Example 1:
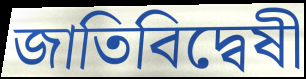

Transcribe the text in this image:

জাতিবিদ্বেষী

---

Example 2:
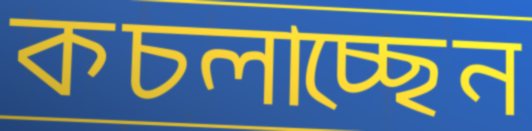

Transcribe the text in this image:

কচলাচ্ছেন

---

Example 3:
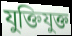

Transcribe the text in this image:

যুক্তিযুক্ত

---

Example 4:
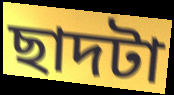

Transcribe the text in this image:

ছাদটা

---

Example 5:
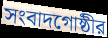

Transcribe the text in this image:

সংবাদগোষ্ঠীর